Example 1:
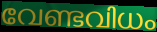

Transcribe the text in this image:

വേണ്ടവിധം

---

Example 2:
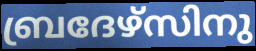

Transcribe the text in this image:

ബ്രദേഴ്സിനു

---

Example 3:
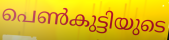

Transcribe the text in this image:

പെൺകുട്ടിയുടെ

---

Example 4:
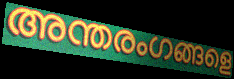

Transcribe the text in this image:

അന്തരംഗങ്ങളെ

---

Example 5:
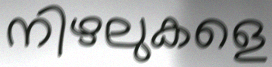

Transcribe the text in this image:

നിഴലുകളെ